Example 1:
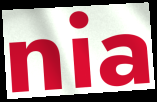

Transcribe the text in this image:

nia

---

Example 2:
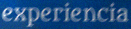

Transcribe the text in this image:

experiencia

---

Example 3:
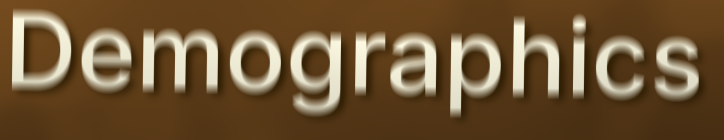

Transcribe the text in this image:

Demographics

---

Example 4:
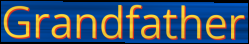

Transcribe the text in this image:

Grandfather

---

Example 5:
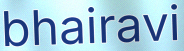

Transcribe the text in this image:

bhairavi